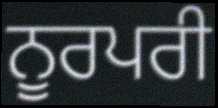
ਨੂਰਪਰੀ